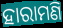
ହାରାମଣି